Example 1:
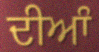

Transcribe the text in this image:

ਦੀਆੰ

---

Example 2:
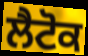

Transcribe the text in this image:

ਲੈਟੋਕ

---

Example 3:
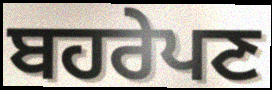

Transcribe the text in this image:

ਬਹਰੇਪਣ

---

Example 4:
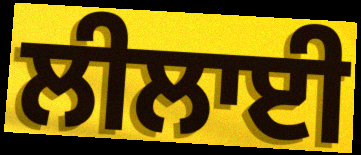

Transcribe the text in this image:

ਲੀਲਾਈ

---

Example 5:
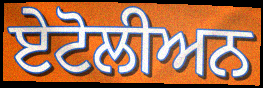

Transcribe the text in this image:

ਏਟੋਲੀਅਨ